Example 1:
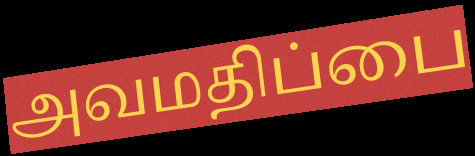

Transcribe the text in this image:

அவமதிப்பை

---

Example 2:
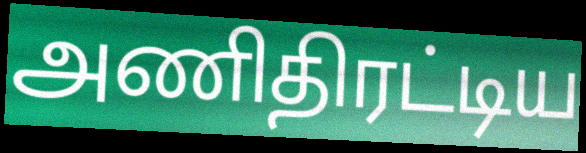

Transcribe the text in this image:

அணிதிரட்டிய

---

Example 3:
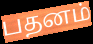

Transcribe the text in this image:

பதனம்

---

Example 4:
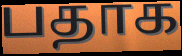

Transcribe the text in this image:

பதாக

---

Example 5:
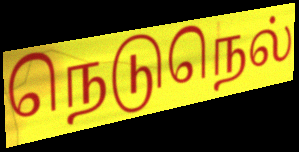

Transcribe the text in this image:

நெடுநெல்